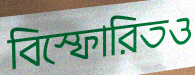
বিস্ফোরিতও